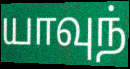
யாவுந்